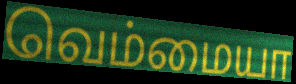
வெம்மையா